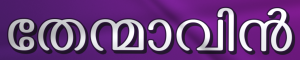
തേന്മാവിൻ